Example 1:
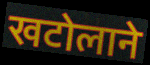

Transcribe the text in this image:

खटोलाने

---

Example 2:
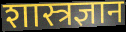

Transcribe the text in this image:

शास्त्रज्ञान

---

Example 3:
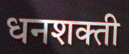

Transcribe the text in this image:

धनशक्ती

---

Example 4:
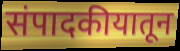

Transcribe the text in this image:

संपादकीयातून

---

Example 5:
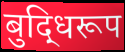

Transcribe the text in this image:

बुद्धिरूप